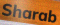
Sharab